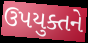
ઉપયુક્તને